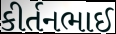
કીર્તનભાઈ